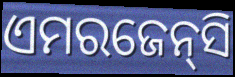
ଏମରଜେନ୍‌ସି